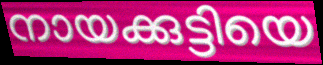
നായക്കുട്ടിയെ